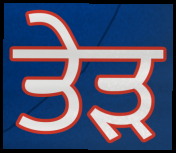
ਤੇੜ